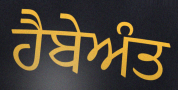
ਹੈਬੇਅੰਤ